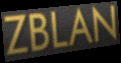
ZBLAN